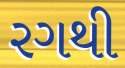
રગથી